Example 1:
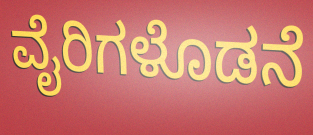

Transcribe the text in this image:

ವೈರಿಗಳೊಡನೆ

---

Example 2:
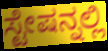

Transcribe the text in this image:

ಸ್ಟೇಷನ್ನಲ್ಲಿ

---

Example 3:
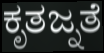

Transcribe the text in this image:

ಕೃತಜ್ನತೆ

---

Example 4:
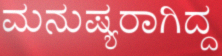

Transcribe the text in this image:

ಮನುಷ್ಯರಾಗಿದ್ದ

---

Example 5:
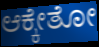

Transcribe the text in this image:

ಆಕ್ಕೇತೋ